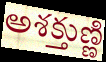
అశక్తుణ్ణి